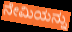
ನೇಮಿಯನ್ನು